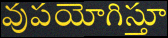
వుపయోగిస్తూ